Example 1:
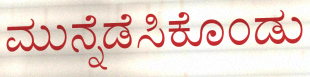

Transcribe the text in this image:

ಮುನ್ನೆಡೆಸಿಕೊಂಡು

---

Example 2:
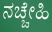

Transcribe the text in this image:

ನಚ್ಚೇಹಿ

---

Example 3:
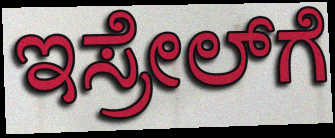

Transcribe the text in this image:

ಇಸ್ರೇಲ್‍ಗೆ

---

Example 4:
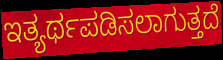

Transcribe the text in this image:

ಇತ್ಯರ್ಥಪಡಿಸಲಾಗುತ್ತದೆ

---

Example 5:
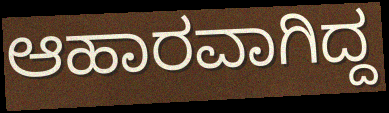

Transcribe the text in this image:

ಆಹಾರವಾಗಿದ್ದ